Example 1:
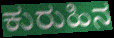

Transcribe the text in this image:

ಕುರುಹಿನ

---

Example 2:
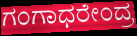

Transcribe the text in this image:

ಗಂಗಾಧರೇಂದ್ರ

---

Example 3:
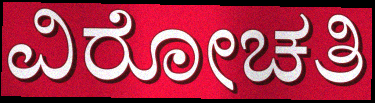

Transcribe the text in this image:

ವಿರೋಚತಿ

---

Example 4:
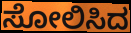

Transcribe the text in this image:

ಸೋಲಿಸಿದ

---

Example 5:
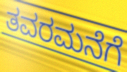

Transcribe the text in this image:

ತವರಮನೆಗೆ